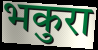
भकुरा